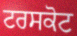
ਟਰਸਕੋਟ